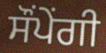
ਸੌਂਪੇਂਗੀ